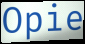
Opie